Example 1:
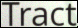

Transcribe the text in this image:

Tract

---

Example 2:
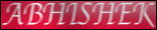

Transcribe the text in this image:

ABHISHEK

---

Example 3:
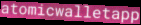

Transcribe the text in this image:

atomicwalletapp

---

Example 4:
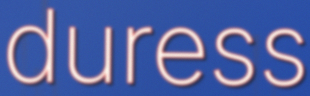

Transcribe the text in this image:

duress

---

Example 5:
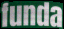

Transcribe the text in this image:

funda